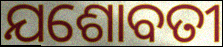
ଯଶୋବତୀ